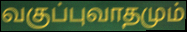
வகுப்புவாதமும்